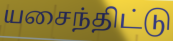
யசைந்திட்டு